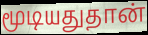
மூடியதுதான்